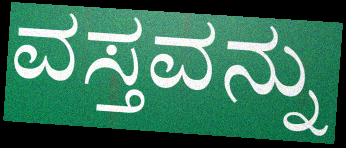
ವಸ್ತವನ್ನು